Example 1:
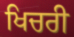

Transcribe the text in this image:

ਖਿਚਰੀ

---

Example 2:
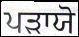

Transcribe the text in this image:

ਪੜਾਯੋ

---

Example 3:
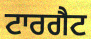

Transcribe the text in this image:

ਟਾਰਗੈਟ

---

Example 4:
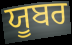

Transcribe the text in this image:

ਯੂਬਰ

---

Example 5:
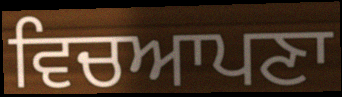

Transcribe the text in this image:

ਵਿਚਆਪਣਾ